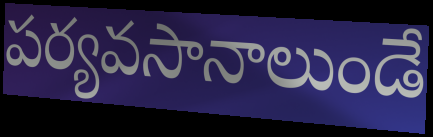
పర్యవసానాలుండే